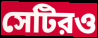
সেটিরও